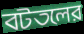
বটতলের